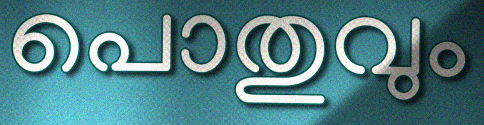
പൊതുവും